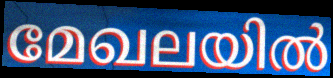
മേഖലയിൽ